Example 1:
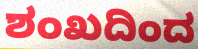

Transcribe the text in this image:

ಶಂಖದಿಂದ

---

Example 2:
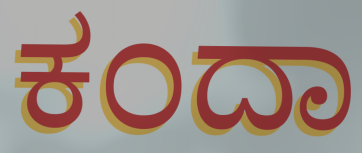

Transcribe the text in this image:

ಕಂದಾ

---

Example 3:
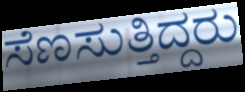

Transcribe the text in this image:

ಸೆಣಸುತ್ತಿದ್ದರು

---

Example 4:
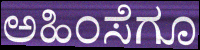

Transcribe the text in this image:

ಅಹಿಂಸೆಗೂ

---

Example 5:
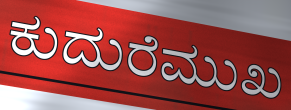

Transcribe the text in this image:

ಕುದುರೆಮುಖ